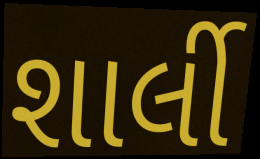
શાર્લી